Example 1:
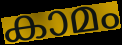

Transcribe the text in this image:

കാമം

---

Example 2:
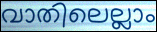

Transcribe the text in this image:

വാതിലെല്ലാം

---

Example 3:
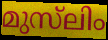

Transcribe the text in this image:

മുസ്‌ലിം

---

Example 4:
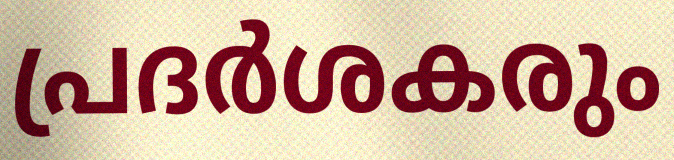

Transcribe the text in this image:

പ്രദർശകരും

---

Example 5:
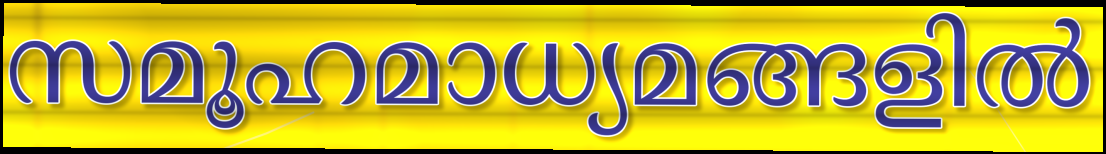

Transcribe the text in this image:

സമൂഹമാധ്യമങ്ങളിൽ